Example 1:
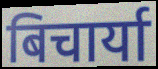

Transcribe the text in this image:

बिचार्या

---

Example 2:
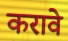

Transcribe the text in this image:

करावे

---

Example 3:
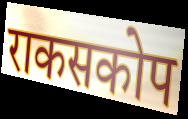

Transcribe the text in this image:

राकसकोप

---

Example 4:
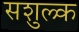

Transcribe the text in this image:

सशुल्क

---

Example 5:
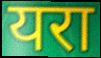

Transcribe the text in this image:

यरा